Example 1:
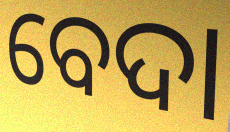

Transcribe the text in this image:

ବେଦା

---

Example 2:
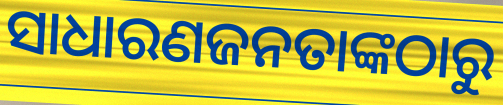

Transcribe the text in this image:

ସାଧାରଣଜନତାଙ୍କଠାରୁ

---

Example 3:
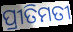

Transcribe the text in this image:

ପ୍ରୀତିମତୀ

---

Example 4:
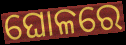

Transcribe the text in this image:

ଘୋଳରେ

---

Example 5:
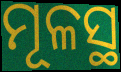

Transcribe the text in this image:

ମୂଳସ୍ଥ